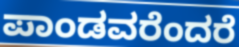
ಪಾಂಡವರೆಂದರೆ